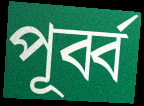
পূর্ব্ব